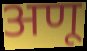
अणू